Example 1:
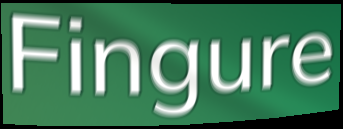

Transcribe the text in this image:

Fingure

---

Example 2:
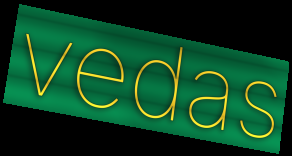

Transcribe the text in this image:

vedas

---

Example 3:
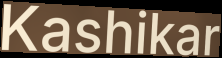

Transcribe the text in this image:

Kashikar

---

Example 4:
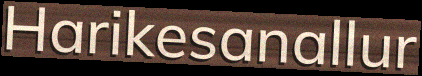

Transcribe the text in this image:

Harikesanallur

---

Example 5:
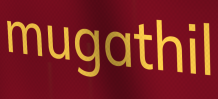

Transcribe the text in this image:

mugathil